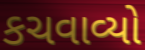
કચવાવ્યો